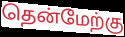
தென்மேற்கு